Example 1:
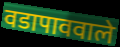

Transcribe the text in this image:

वडापाववाले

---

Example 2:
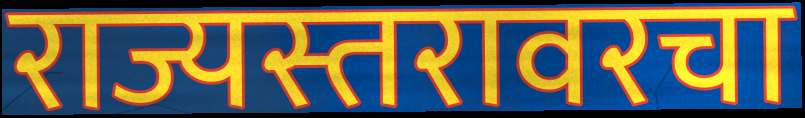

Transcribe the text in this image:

राज्यस्तरावरचा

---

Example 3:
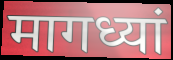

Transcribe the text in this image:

मागध्यां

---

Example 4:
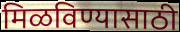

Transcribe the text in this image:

मिळविण्यासाठी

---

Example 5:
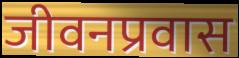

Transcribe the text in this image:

जीवनप्रवास